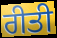
ਰੀਤੀ